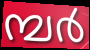
മ്പർ